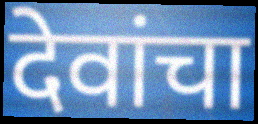
देवांचा